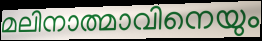
മലിനാത്മാവിനെയും